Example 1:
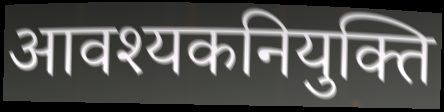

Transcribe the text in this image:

आवश्यकनियुक्ति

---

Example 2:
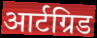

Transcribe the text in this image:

आर्टग्रिड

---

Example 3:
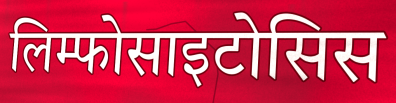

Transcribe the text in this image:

लिम्फोसाइटोसिस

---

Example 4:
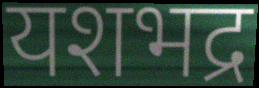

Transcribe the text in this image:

यशभद्र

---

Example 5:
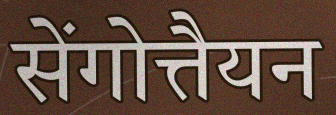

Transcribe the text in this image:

सेंगोत्तैयन